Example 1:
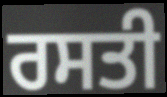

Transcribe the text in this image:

ਰਸਤੀ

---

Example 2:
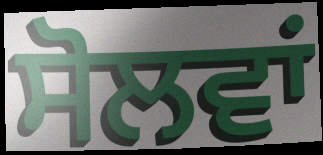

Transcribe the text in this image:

ਸੋਲਵਾਂ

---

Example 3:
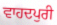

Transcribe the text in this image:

ਵਾਹਦਪੁਰੀ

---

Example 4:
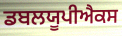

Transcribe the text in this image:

ਡਬਲਯੂਪੀਐਕਸ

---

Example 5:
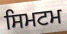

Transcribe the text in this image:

ਸਿਮਟਮ